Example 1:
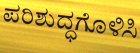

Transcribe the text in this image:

ಪರಿಶುದ್ಧಗೊಳಿಸಿ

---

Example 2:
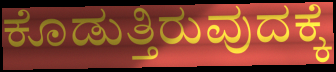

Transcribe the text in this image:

ಕೊಡುತ್ತಿರುವುದಕ್ಕೆ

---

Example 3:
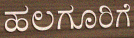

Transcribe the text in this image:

ಹಲಗೂರಿಗೆ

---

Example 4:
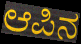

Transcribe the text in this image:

ಆಪಿನ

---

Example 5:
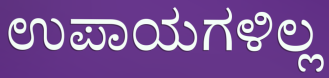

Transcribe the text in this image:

ಉಪಾಯಗಳಿಲ್ಲ